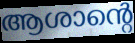
ആശാന്റെ